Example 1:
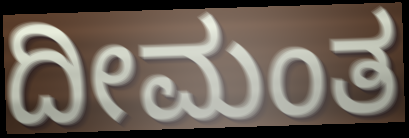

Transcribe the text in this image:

ದೀಮಂತ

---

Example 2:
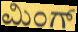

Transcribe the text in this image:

ಮಿಂಗ್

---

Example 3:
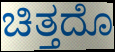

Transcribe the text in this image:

ಚಿತ್ತದೊ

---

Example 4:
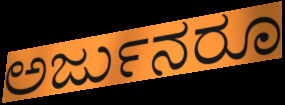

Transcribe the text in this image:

ಅರ್ಜುನರೂ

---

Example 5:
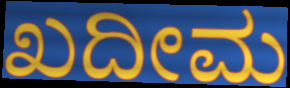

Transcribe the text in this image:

ಖದೀಮ